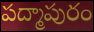
పద్మాపురం